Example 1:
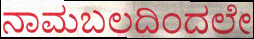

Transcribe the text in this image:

ನಾಮಬಲದಿಂದಲೇ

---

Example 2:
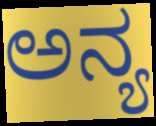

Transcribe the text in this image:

ಅನ್ಯ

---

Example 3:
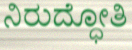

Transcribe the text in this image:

ನಿರುದ್ಧೋತಿ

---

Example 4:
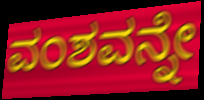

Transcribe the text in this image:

ವಂಶವನ್ನೇ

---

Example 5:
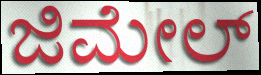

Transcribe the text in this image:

ಜಿಮೇಲ್